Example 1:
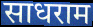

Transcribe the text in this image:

साधराम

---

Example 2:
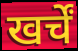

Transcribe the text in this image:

खर्चें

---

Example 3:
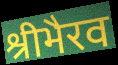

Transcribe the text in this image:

श्रीभैरव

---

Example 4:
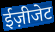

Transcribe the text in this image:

ईज़ीजेट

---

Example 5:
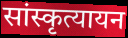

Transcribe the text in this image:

सांस्कृत्यायन